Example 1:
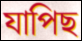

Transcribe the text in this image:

যাপিছ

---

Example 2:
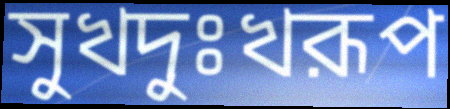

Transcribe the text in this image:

সুখদুঃখরূপ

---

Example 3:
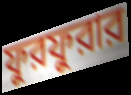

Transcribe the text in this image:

ফুরফুরার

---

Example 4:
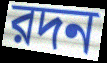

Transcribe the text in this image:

রদন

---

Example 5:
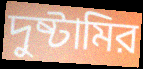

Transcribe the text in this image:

দুষ্টামির